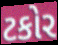
ટકોર